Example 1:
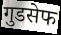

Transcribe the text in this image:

गुडसेफ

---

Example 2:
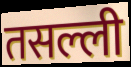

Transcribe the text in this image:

तसल्‍ली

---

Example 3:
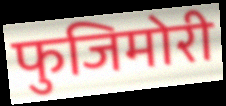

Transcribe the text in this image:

फुजिमोरी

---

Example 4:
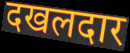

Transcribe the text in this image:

दखलदार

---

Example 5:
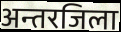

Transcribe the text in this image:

अन्तरजिला